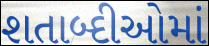
શતાબ્દીઓમાં